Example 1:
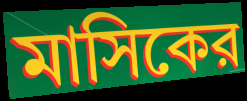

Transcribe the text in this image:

মাসিকের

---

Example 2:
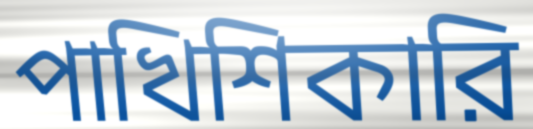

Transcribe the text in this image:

পাখিশিকারি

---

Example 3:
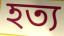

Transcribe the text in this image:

হত্য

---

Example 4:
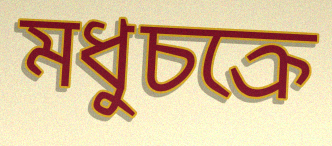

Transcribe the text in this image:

মধুচক্রে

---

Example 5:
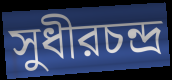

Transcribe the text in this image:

সুধীরচন্দ্র